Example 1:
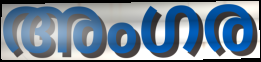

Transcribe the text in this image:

അംഗര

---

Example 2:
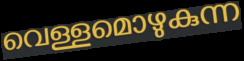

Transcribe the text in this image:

വെള്ളമൊഴുകുന്ന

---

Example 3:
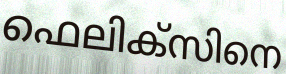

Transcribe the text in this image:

ഫെലിക്സിനെ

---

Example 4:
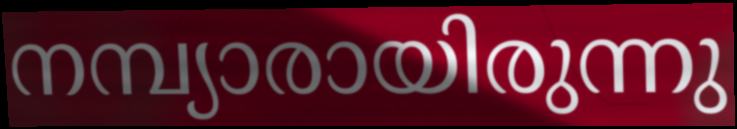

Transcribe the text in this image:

നമ്പ്യാരായിരുന്നു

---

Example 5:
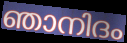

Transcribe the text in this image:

ഞാനിദം